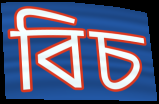
বিচ